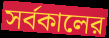
সর্বকালের